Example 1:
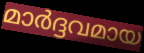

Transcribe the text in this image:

മാർദ്ദവമായ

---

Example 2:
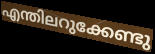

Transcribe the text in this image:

എന്തിലറുക്കേണ്ടു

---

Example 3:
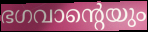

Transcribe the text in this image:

ഭഗവാന്റെയും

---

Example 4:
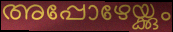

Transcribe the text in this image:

അപ്പോഴേയ്ക്കും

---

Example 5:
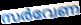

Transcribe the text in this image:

സർവേണ